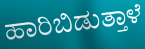
ಹಾರಿಬಿಡುತ್ತಾಳೆ